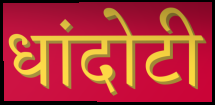
धांदोटी